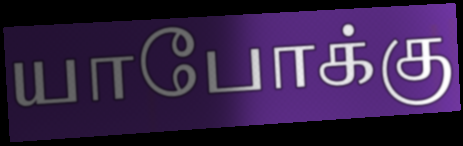
யாபோக்கு